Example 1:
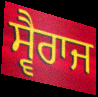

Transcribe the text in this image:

ਸ੍ਵੈਰਾਜ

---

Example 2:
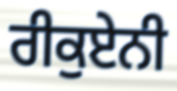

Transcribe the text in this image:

ਰੀਕੁਏਨੀ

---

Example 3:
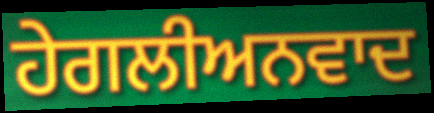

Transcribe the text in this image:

ਹੇਗਲੀਅਨਵਾਦ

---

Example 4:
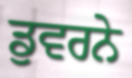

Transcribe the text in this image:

ਡੁਵਰਨੇ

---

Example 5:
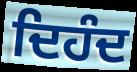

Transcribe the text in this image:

ਦਿਹੰਦ